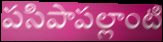
పసిపాపల్లాంటి